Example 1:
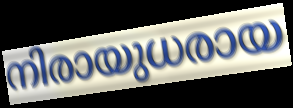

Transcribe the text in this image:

നിരായുധരായ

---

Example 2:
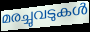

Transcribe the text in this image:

മരച്ചുവടുകൾ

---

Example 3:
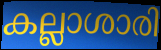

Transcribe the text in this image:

കല്ലാശാരി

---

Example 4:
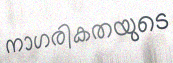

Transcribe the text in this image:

നാഗരികതയുടെ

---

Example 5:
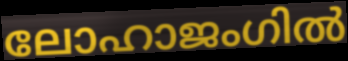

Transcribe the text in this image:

ലോഹാജംഗിൽ